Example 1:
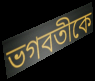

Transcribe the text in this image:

ভগবতীকে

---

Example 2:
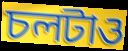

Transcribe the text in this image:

চলটাও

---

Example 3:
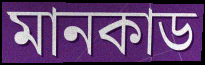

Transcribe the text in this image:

মানকাড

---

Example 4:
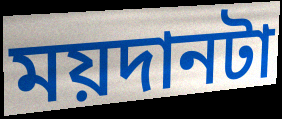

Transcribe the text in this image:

ময়দানটা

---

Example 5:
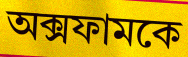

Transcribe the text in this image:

অক্সফামকে